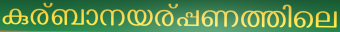
കുര്ബാനയര്പ്പണത്തിലെ